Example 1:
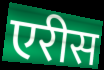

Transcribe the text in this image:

एरीस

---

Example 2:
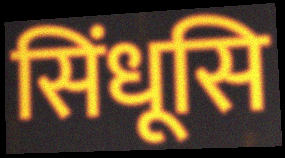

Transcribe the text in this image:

सिंधूसि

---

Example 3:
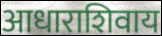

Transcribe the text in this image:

आधाराशिवाय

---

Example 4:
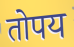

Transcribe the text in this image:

तोपय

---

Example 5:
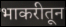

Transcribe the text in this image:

भाकरीतून